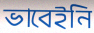
ভাবেইনি